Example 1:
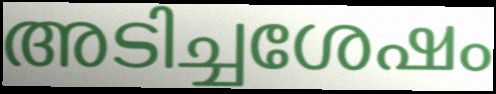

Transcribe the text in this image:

അടിച്ചശേഷം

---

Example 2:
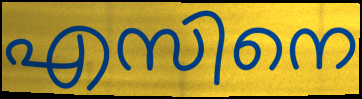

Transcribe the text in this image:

എസിനെ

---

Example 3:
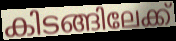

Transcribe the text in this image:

കിടങ്ങിലേക്ക്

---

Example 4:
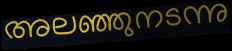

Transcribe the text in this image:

അലഞ്ഞുനടന്നു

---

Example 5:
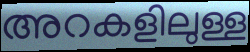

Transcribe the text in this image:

അറകളിലുള്ള